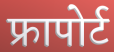
फ्रापोर्ट